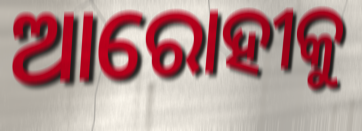
ଆରୋହୀକୁ